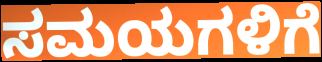
ಸಮಯಗಳಿಗೆ